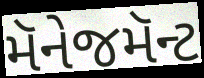
મૅનેજમૅન્ટ